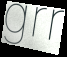
grr